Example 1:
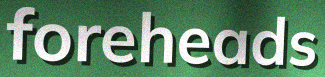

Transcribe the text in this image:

foreheads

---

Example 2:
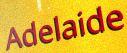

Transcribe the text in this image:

Adelaide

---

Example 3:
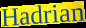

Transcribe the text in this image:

Hadrian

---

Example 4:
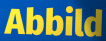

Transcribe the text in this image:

Abbild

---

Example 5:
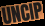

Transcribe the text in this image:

UNCIP